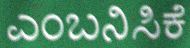
ಎಂಬನಿಸಿಕೆ